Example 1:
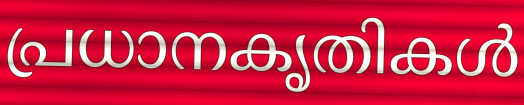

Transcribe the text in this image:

പ്രധാനകൃതികൾ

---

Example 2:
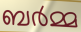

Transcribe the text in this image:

ബർമ്മ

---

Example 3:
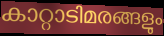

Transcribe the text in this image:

കാറ്റാടിമരങ്ങളും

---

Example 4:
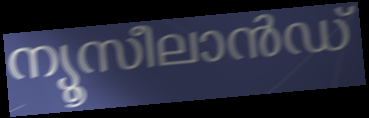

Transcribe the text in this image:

ന്യൂസീലാൻഡ്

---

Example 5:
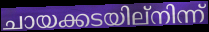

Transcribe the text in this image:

ചായക്കടയില്നിന്ന്